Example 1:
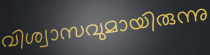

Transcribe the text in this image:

വിശ്വാസവുമായിരുന്നു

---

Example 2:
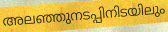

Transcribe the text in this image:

അലഞ്ഞുനടപ്പിനിടയിലും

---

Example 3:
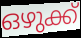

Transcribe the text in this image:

ഒഴുക്ക്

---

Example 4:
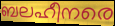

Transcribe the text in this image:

ബലഹീനരെ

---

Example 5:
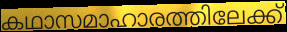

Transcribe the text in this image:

കഥാസമാഹാരത്തിലേക്ക്